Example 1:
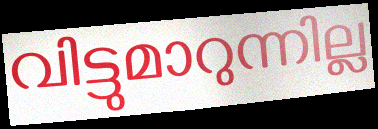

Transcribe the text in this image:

വിട്ടുമാറുന്നില്ല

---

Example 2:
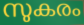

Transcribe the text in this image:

സുകരം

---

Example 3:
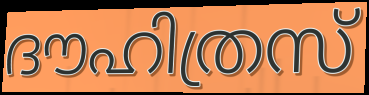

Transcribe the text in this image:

ദൗഹിത്രസ്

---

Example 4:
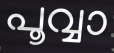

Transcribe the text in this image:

പൂവ്വാ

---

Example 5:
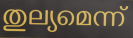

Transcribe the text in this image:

തുല്യമെന്ന്